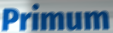
Primum